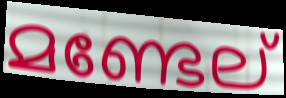
മണ്ടേല്